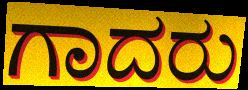
ಗಾದರು